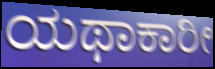
ಯಥಾಕಾರೀ